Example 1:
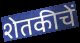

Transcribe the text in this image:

शेतकीचें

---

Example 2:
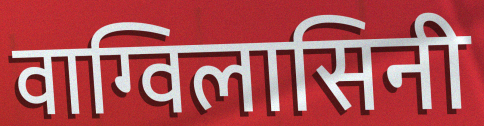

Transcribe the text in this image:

वाग्विलासिनी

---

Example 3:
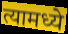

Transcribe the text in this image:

त्यामध्ये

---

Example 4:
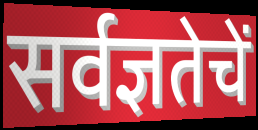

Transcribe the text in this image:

सर्वज्ञतेचें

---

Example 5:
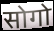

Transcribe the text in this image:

सोगो